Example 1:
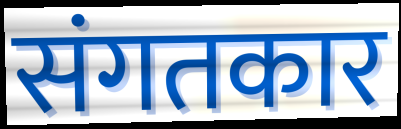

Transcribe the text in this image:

संगतकार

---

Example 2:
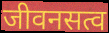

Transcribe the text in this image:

जीवनसत्व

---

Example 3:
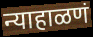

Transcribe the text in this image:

न्याहाळणं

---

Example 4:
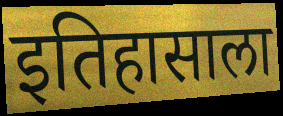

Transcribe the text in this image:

इतिहासाला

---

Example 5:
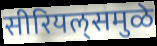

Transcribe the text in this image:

सीरियल्समुळे